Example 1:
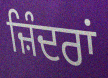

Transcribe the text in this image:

ਜ਼ਿੰਦਰਾਂ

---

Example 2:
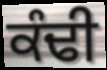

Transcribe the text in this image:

ਕੰਢੀ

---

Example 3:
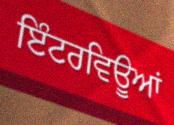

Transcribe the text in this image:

ਇੰਟਰਵਿਊਆਂ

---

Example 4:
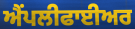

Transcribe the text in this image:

ਐੰਪਲੀਫਾਈਅਰ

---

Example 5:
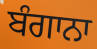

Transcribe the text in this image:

ਬੰਗਾਨਾ